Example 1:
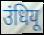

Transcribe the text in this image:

उंधियू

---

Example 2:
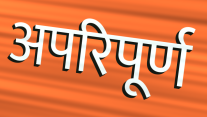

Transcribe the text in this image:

अपरिपूर्ण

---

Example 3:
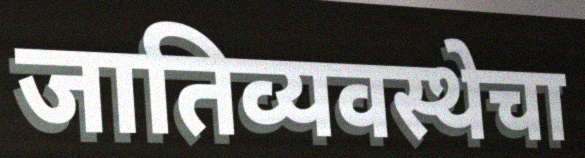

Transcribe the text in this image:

जातिव्यवस्थेचा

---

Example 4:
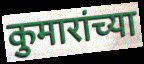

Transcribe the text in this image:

कुमारांच्या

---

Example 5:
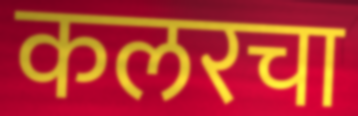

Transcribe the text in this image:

कलरचा